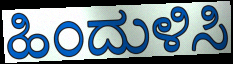
ಹಿಂದುಳಿಸಿ